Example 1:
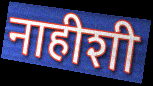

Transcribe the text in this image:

नाहीशी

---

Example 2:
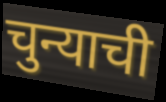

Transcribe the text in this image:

चुन्याची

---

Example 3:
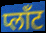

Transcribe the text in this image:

प्लाँट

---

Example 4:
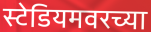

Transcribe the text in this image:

स्टेडियमवरच्या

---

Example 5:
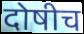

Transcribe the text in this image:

दोषीच